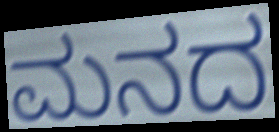
ಮನದ